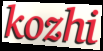
kozhi